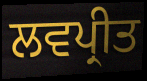
ਲਵਪ੍ਰੀਤ